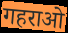
गहराओ